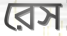
রেস